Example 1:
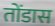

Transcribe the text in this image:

तोंडास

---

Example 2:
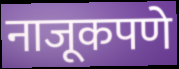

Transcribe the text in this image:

नाजूकपणे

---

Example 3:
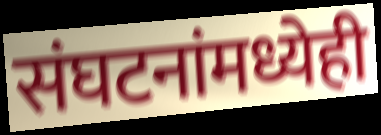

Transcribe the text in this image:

संघटनांमध्येही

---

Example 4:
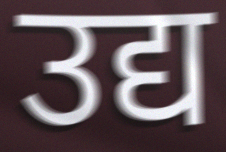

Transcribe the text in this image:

उद्य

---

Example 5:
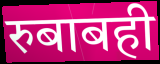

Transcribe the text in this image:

रुबाबही